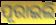
ପୂରାଇଲି